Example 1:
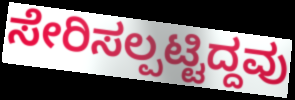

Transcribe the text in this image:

ಸೇರಿಸಲ್ಪಟ್ಟಿದ್ದವು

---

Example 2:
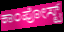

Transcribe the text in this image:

ಕಾಂಪೋಸ್ಟ್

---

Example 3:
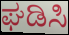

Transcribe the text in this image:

ಘಡಿಸಿ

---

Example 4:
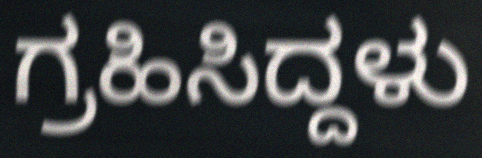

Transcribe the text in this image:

ಗ್ರಹಿಸಿದ್ದಳು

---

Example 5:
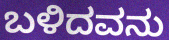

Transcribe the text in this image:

ಬಳಿದವನು